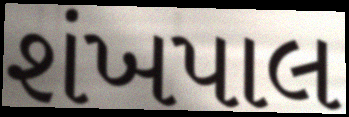
શંખપાલ